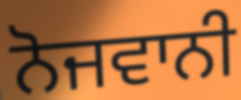
ਨੋਜਵਾਨੀ